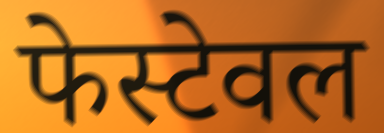
फेस्टेवल